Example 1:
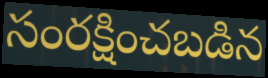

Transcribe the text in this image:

సంరక్షించబడిన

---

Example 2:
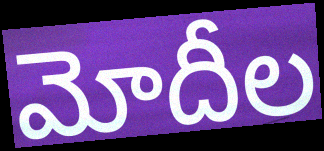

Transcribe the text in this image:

మోదీల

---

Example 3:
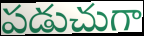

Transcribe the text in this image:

పడుచుగా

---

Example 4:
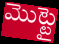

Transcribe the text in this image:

మొట్టై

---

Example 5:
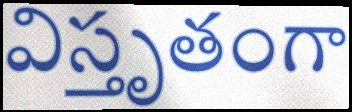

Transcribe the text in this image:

విస్తృతంగా